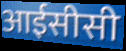
आईसीसी